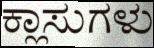
ಕ್ಲಾಸುಗಳು